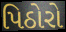
પિઠોરો